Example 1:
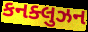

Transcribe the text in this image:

કનક્લુઝન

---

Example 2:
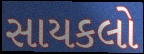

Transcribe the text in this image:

સાયકલો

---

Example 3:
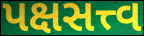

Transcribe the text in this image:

પક્ષસત્ત્વ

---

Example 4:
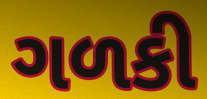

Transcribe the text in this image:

ગળકી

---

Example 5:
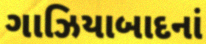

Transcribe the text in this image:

ગાઝિયાબાદનાં